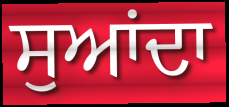
ਸੁਆਂਦਾ